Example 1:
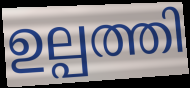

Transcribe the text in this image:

ഉല്പത്തി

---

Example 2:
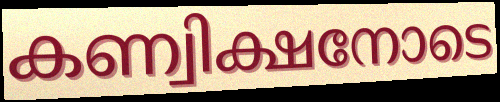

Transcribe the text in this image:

കണ്വിക്ഷനോടെ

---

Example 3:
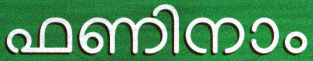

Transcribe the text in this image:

ഫണിനാം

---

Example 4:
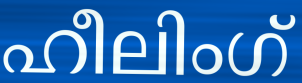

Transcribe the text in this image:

ഹീലിംഗ്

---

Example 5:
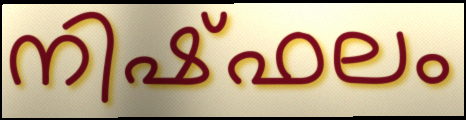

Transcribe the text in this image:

നിഷ്ഫലം